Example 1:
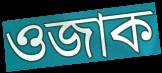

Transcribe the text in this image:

ওজাক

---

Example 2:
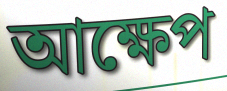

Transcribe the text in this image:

আক্ষেপ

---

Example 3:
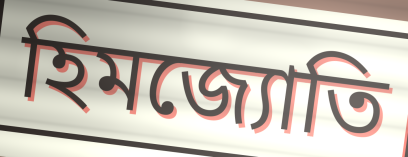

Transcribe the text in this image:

হিমজ্যোতি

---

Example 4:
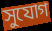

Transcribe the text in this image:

সুযোগ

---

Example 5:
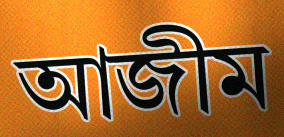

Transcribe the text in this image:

আজীম